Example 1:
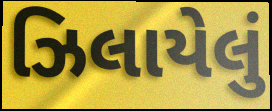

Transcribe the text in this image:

ઝિલાયેલું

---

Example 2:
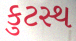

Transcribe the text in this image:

કુટસ્થ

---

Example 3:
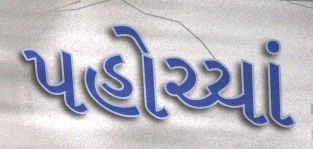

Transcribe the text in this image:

પહોચ્યાં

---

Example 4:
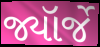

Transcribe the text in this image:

જ્યૉર્જે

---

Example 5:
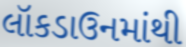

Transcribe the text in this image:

લૉકડાઉનમાંથી